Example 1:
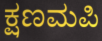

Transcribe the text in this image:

ಕ್ಷಣಮಪಿ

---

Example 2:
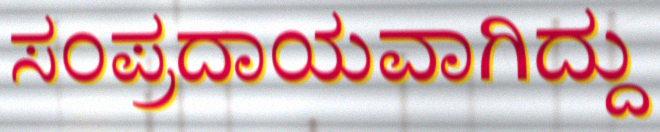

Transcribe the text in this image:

ಸಂಪ್ರದಾಯವಾಗಿದ್ದು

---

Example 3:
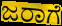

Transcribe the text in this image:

ಜರಾಗೆ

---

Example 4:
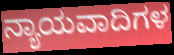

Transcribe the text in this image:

ನ್ಯಾಯವಾದಿಗಳ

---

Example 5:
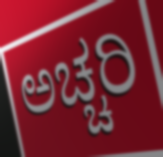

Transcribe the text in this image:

ಅಚ್ಚರಿ